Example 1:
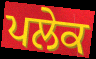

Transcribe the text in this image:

ਪਲੇਕ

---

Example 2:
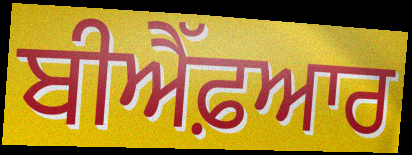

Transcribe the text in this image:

ਬੀਐੱਫ਼ਆਰ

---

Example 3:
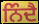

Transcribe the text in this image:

ਨਿੰਦੈ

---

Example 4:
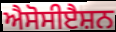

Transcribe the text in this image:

ਐਸੋਸੀੲੈਸ਼ਨ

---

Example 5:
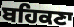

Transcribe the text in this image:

ਬਹਿਕਣਾ